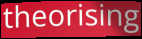
theorising